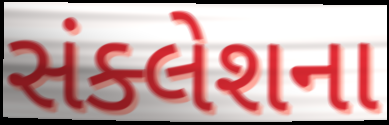
સંક્લેશના